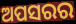
ଅପସରର